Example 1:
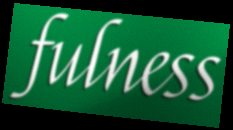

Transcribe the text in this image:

fulness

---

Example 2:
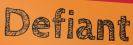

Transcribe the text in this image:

Defiant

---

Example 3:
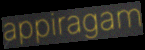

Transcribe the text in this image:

appiragam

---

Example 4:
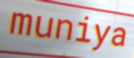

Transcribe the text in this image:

muniya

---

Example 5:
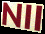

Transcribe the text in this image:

NII